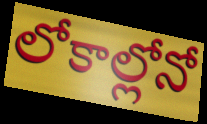
లోకాల్లోనో